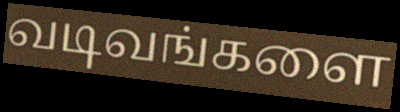
வடிவங்களை